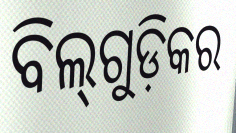
ବିଲ୍‌ଗୁଡ଼ିକର